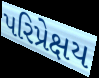
પરિપ્રેક્ષય